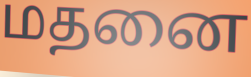
மதனை